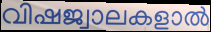
വിഷജ്വാലകളാൽ